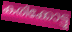
കരിക്കോട്ടു